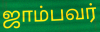
ஜாம்பவர்